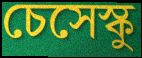
চেসেস্কু